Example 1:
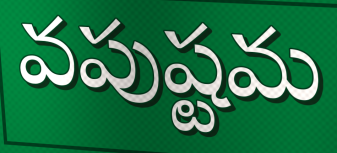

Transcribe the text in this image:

వపుష్టమ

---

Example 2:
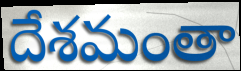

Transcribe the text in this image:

దేశమంతా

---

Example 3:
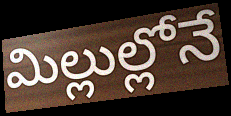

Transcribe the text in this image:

మిల్లుల్లోనే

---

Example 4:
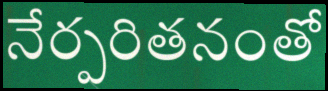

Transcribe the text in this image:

నేర్పరితనంతో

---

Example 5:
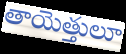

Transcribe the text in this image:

తాయెత్తులూ